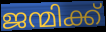
ജന്മിക്ക്